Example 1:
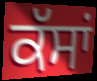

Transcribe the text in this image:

ਕੱਸਾਂ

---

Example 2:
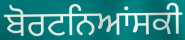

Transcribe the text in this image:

ਬੋਰਟਨਿਆਂਸਕੀ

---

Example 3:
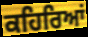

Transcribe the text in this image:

ਕਹਿਰਿਆਂ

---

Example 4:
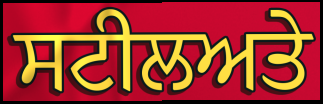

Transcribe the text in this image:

ਸਟੀਲਅਤੇ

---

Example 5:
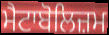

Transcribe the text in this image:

ਮੈਟਾਬੋਲਿਜ਼ਮ